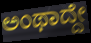
ಅಂಥಾದ್ದೇ